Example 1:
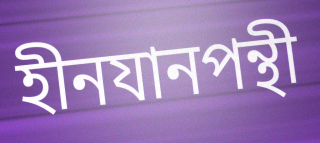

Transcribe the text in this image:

হীনযানপন্থী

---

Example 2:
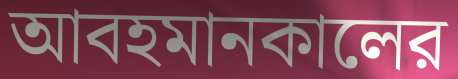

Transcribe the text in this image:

আবহমানকালের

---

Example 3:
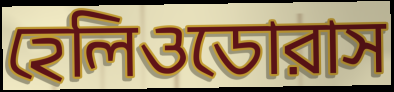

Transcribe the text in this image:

হেলিওডোরাস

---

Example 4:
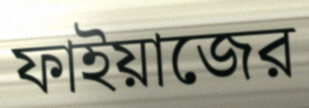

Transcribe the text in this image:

ফাইয়াজের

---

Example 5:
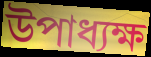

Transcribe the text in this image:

উপাধ্যক্ষ